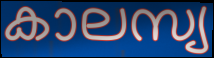
കാലസ്യ